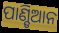
ପାଣ୍ଡିଆନ